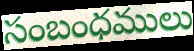
సంబంధములు